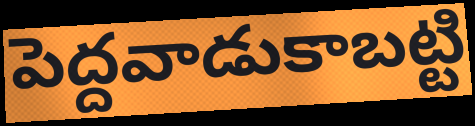
పెద్దవాడుకాబట్టి